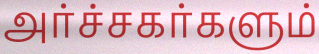
அர்ச்சகர்களும்